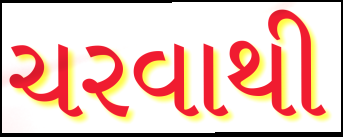
ચરવાથી